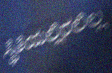
ಸ್ಥಿತಿಯಲ್ಲಿರಲಿಲ್ಲ